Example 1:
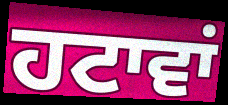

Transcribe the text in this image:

ਹਟਾਵਾਂ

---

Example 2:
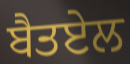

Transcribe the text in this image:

ਬੈਤਏਲ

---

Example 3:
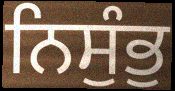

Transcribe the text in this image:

ਨਿਸੁੰਭੁ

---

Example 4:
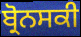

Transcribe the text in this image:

ਬ੍ਰੋਨਸਕੀ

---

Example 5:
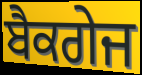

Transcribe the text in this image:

ਬੈਕਗੇਜ